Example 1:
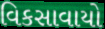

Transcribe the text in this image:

વિકસાવાયો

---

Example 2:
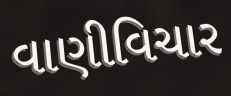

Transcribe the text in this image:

વાણીવિચાર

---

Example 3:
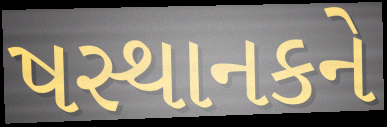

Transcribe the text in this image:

ષસ્થાનકને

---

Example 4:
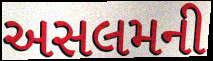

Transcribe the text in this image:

અસલમની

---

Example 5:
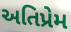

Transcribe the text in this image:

અતિપ્રેમ